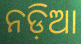
ନଡ଼ିଆ